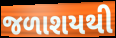
જળાશયથી